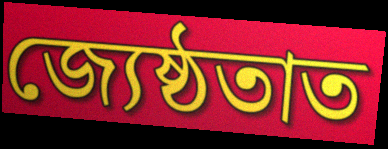
জ্যেষ্ঠতাত